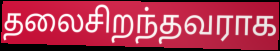
தலைசிறந்தவராக